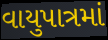
વાયુપાત્રમાં